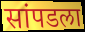
सांपडला